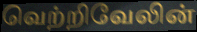
வெற்றிவேலின்